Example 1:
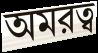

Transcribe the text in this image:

অমরত্ব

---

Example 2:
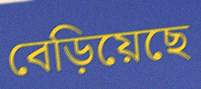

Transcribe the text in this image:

বেড়িয়েছে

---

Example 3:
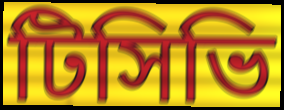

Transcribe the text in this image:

টিসিভি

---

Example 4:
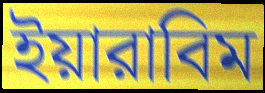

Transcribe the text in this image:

ইয়ারাবিম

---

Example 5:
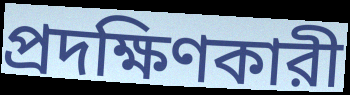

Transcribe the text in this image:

প্রদক্ষিণকারী